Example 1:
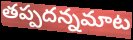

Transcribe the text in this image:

తప్పదన్నమాట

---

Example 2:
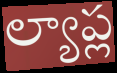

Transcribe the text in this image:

ల్యాప్ల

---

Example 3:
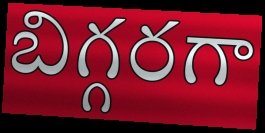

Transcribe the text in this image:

బిగ్గరగా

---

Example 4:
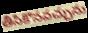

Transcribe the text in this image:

తీసికొనవచ్చును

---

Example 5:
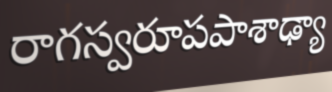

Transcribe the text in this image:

రాగస్వరూపపాశాఢ్యా